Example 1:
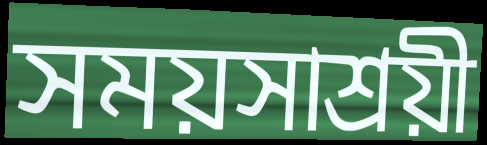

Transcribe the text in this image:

সময়সাশ্রয়ী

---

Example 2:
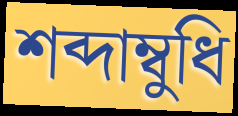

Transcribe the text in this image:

শব্দাম্বুধি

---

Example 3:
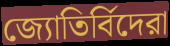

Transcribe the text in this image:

জ্যোতির্বিদেরা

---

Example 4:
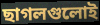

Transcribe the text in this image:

ছাগলগুলোই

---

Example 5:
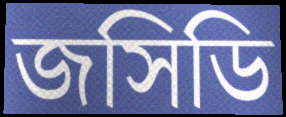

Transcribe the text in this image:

জসিডি